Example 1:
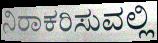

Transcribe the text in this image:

ನಿರಾಕರಿಸುವಲ್ಲಿ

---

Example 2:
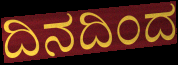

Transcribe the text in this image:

ದಿನದಿಂದ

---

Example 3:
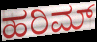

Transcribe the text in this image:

ಹರಿಮ್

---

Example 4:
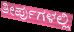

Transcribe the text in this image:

ತೀರ್ಪುಗಳಲ್ಲಿ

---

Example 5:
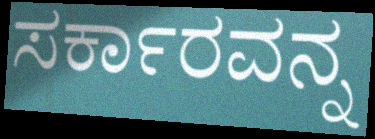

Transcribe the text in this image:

ಸರ್ಕಾರವನ್ನ